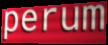
perum